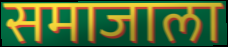
समाजाला